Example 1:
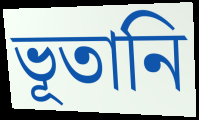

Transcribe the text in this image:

ভূতানি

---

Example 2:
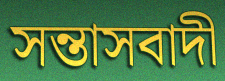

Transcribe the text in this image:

সন্তাসবাদী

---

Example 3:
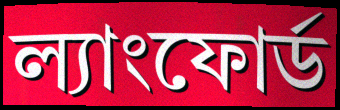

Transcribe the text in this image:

ল্যাংফোর্ড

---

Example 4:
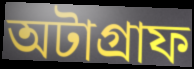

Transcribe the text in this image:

অটাগ্রাফ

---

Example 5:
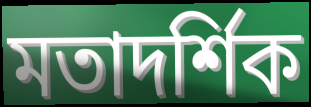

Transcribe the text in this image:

মতাদর্শিক